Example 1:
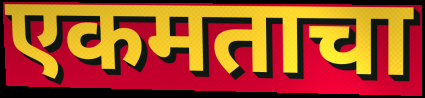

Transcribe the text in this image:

एकमताचा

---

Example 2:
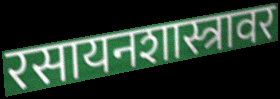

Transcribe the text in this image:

रसायनशास्त्रावर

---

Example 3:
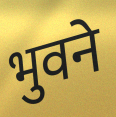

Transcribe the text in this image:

भुवने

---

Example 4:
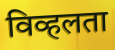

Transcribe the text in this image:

विव्हलता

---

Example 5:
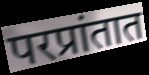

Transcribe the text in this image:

परप्रांतात